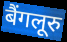
बैंगलूरु